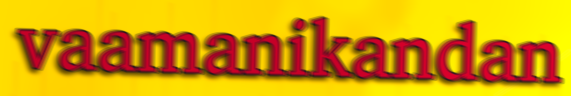
vaamanikandan